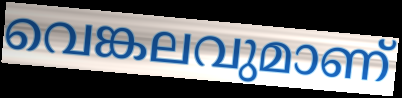
വെങ്കലവുമാണ്